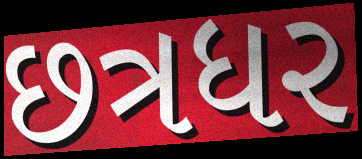
છત્રધર